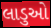
લાડુઓ